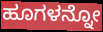
ಹೂಗಳನ್ನೋ